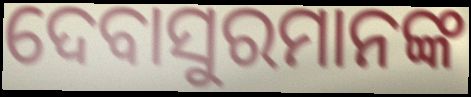
ଦେବାସୁରମାନଙ୍କ